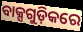
ବାକ୍ସଗୁଡ଼ିକରେ